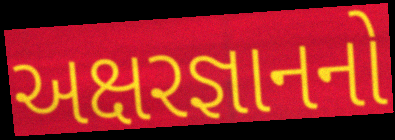
અક્ષરજ્ઞાનનો